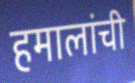
हमालांची